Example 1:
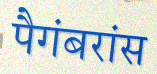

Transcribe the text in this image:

पैगंबरांस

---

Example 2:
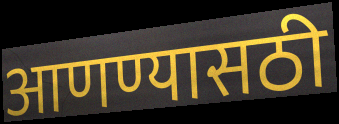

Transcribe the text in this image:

आणण्यासठी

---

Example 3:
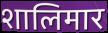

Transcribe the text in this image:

शालिमार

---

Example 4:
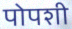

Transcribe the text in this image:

पोपशी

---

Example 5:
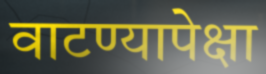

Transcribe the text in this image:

वाटण्यापेक्षा